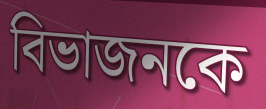
বিভাজনকে